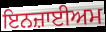
ਇਨਜ਼ਾਈਅਮ